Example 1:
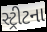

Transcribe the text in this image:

સ્ટ્રીટના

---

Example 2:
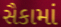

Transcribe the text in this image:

સૈકામાં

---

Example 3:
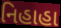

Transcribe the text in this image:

નિહાહા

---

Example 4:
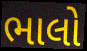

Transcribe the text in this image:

ભાલો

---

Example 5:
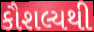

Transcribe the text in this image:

કૌશલ્યથી